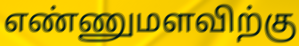
எண்ணுமளவிற்கு